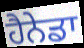
ਹੈਨੇਡਾ